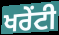
ਖਰੇਂਟੀ